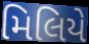
મિલિયે